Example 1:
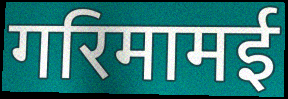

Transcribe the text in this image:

गरिमामई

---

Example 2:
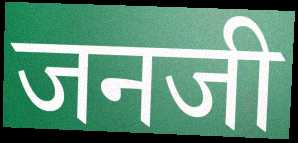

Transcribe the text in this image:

जनजी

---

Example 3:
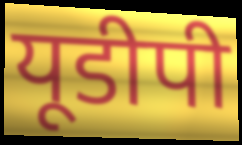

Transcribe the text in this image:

यूडीपी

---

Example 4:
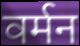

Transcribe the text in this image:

वर्मन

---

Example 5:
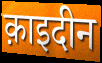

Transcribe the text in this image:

क़ाइदीन